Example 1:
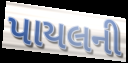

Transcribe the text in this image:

પાયલની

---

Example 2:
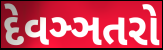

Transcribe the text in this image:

દેવઞ્ઞતરો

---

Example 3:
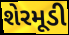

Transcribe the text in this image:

શેરમૂડી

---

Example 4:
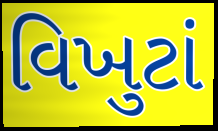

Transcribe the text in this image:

વિખુટાં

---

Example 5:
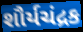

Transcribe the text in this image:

શૌર્યચંદ્રક